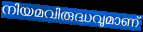
നിയമവിരുദ്ധവുമാണ്